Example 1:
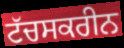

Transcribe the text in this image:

ਟੱਚਸਕਰੀਨ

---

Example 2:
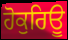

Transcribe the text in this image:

ਹੋਕੁਰਿਊ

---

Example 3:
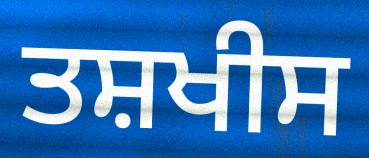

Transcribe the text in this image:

ਤਸ਼ਖੀਸ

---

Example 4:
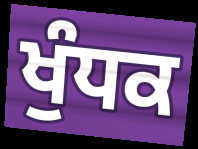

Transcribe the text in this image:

ਖੁੰਧਕ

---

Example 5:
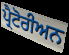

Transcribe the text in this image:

ਪ੍ਰੈਟੋਰੀਅਨ